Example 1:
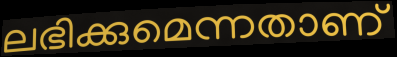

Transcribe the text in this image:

ലഭിക്കുമെന്നതാണ്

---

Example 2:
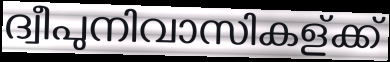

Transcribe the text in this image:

ദ്വീപുനിവാസികള്ക്ക്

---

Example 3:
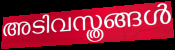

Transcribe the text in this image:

അടിവസ്ത്രങ്ങൾ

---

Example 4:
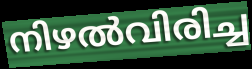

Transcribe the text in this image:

നിഴൽവിരിച്ച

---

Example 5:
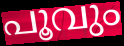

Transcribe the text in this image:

പൂവും